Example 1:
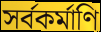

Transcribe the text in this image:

সর্বকর্মাণি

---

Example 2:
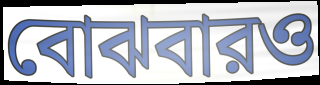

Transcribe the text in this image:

বোঝবারও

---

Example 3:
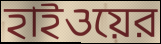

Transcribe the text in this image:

হাইওয়ের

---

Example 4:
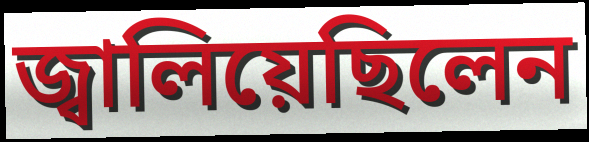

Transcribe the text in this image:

জ্বালিয়েছিলেন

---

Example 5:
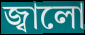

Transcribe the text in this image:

জ্বালো